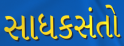
સાધકસંતો